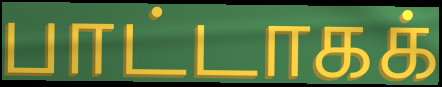
பாட்டாகக்